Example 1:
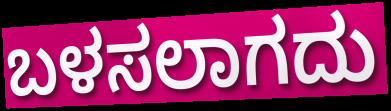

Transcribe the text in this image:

ಬಳಸಲಾಗದು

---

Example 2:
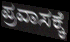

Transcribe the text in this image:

ಪ್ರವಾಸಕ್ಕೆ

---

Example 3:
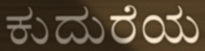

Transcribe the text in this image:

ಕುದುರೆಯ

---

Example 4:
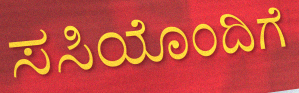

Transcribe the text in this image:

ಸಸಿಯೊಂದಿಗೆ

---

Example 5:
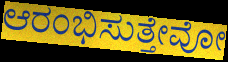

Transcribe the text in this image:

ಆರಂಭಿಸುತ್ತೇವೋ